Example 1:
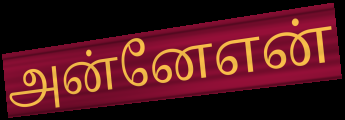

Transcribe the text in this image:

அன்னேஎன்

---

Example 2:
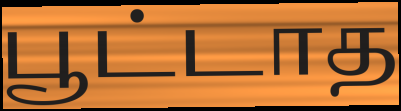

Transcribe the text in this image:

பூட்டாத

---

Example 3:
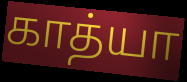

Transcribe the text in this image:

காத்யா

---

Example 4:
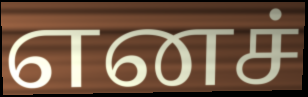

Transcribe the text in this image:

எனச்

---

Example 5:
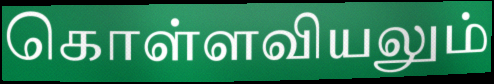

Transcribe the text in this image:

கொள்ளவியலும்